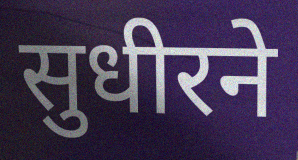
सुधीरने